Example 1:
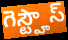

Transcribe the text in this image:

గెస్ట్హౌస్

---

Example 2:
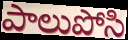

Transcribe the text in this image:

పాలుపోసి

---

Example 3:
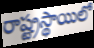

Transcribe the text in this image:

రాష్ట్రస్థాయిలో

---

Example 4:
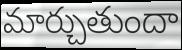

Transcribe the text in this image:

మార్చుతుందా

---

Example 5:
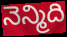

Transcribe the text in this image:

నెన్మిది